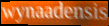
wynaadensis